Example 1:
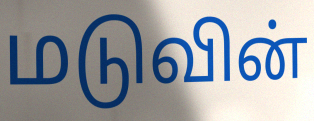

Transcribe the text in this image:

மடுவின்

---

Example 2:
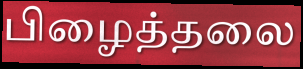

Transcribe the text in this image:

பிழைத்தலை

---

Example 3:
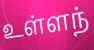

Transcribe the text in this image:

உள்ளந்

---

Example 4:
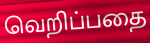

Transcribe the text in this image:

வெறிப்பதை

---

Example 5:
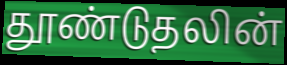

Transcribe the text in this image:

தூண்டுதலின்